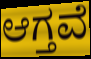
ಆಗ್ತವೆ